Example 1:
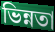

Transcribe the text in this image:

ভিন্নতা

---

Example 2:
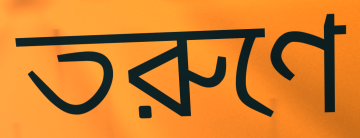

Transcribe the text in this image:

তৰুণে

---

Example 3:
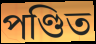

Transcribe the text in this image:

পণ্ডিত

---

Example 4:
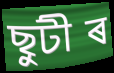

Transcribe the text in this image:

ছুটীৰ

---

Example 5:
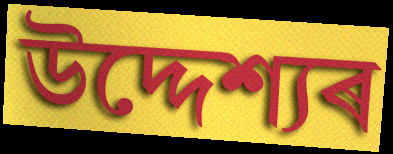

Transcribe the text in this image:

উদ্দেশ্যৰ